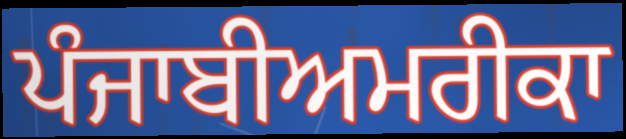
ਪੰਜਾਬੀਅਮਰੀਕਾ